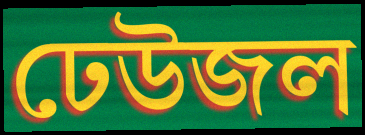
ঢেউজল